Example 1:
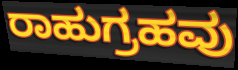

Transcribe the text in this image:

ರಾಹುಗ್ರಹವು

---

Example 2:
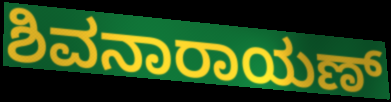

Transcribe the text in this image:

ಶಿವನಾರಾಯಣ್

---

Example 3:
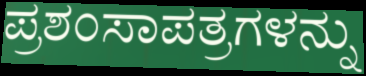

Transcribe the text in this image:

ಪ್ರಶಂಸಾಪತ್ರಗಳನ್ನು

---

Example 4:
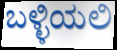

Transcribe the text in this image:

ಬಳ್ಳಿಯಲಿ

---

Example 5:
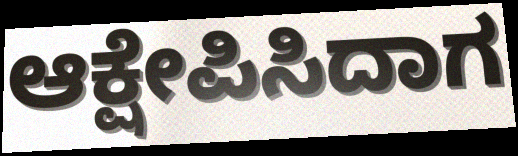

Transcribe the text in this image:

ಆಕ್ಷೇಪಿಸಿದಾಗ